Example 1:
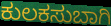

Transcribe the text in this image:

ಕುಲಕಸುಬಾಗಿ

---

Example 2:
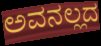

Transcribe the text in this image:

ಅವನಲ್ಲದ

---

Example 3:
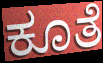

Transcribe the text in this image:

ಕೂತೆ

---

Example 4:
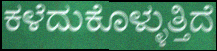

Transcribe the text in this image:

ಕಳೆದುಕೊಳ್ಳುತ್ತಿದೆ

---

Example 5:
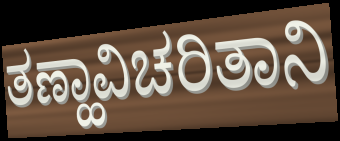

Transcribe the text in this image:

ತಣ್ಹಾವಿಚರಿತಾನಿ